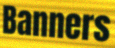
Banners